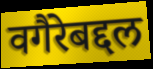
वगैरेबद्दल